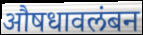
औषधावलंबन